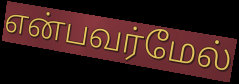
என்பவர்மேல்